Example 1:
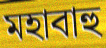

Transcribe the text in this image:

মহাবাহু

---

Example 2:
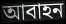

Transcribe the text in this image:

আবাহন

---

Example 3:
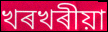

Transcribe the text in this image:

খৰখৰীয়া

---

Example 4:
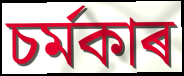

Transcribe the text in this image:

চৰ্মকাৰ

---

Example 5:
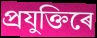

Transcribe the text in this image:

প্ৰযুক্তিৰে